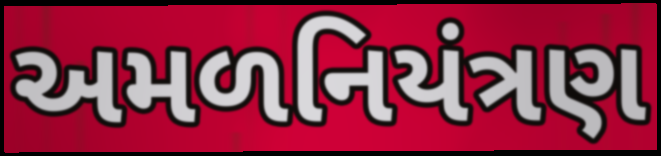
અમળનિયંત્રણ